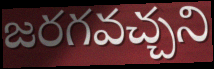
జరగవచ్చని